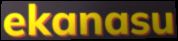
ekanasu